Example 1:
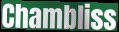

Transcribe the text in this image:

Chambliss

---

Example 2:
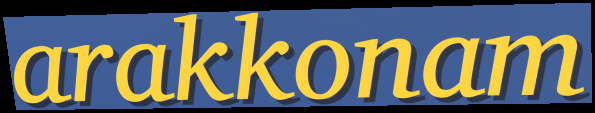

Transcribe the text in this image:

arakkonam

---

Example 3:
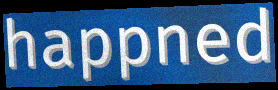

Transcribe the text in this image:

happned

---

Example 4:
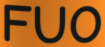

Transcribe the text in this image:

FUO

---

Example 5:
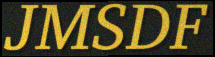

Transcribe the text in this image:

JMSDF